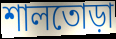
শালতোড়া